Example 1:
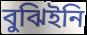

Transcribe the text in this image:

বুঝিইনি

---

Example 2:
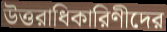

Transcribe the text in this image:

উত্তরাধিকারিণীদের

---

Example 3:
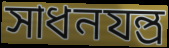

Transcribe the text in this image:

সাধনযন্ত্র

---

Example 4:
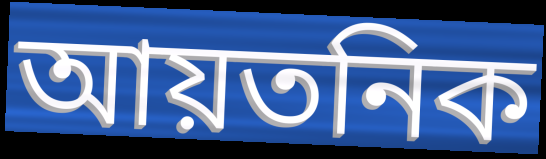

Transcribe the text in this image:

আয়তনিক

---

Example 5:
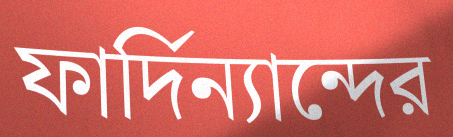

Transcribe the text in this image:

ফার্দিন্যান্দের